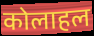
कोलाहल